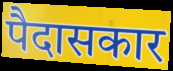
पैदासकार